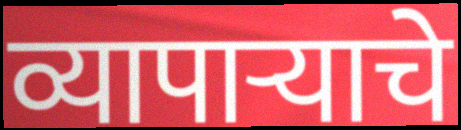
व्यापाऱ्याचे